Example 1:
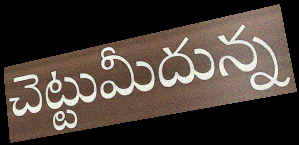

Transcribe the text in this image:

చెట్టుమీదున్న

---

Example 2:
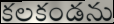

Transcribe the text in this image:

కలకండను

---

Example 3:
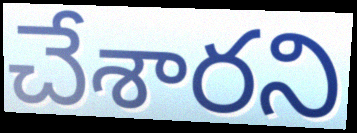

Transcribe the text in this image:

చేశారని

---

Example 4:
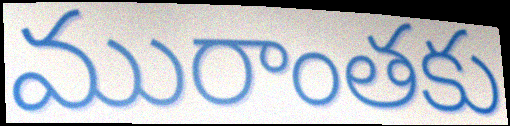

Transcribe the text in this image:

మురాంతకు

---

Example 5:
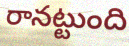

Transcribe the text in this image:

రానట్టుంది